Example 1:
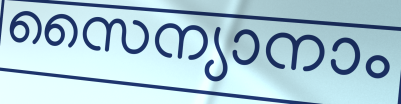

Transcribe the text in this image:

സൈന്യാനാം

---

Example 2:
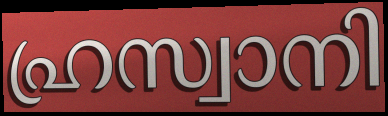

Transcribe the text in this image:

ഹ്രസ്വാനി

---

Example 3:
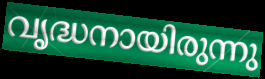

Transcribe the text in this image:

വൃദ്ധനായിരുന്നു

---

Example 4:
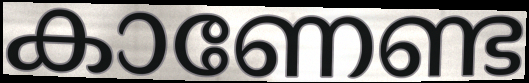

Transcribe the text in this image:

കാണേണ്ട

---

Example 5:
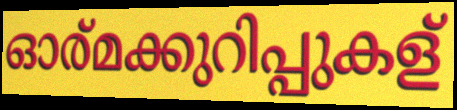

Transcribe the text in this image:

ഓര്മക്കുറിപ്പുകള്